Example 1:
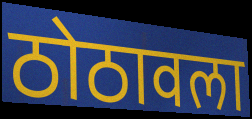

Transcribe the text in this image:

ठोठावला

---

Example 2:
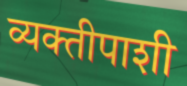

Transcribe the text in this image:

व्यक्तीपाशी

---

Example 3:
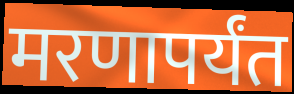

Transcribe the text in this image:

मरणापर्यंत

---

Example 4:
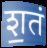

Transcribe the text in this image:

श॒तं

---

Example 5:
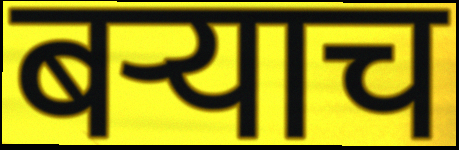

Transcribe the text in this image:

बऱ्याच